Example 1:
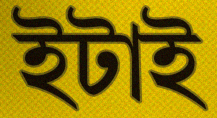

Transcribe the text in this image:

ইটাই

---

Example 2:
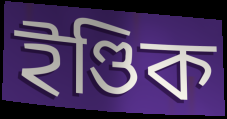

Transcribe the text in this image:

ইণ্ডিক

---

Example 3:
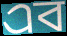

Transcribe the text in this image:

এব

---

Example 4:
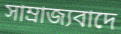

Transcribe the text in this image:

সাম্ৰাজ্যবাদে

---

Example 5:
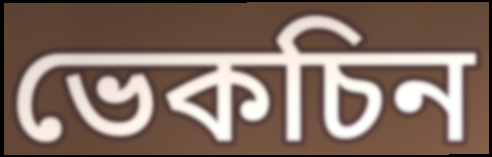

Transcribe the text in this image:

ভেকচিন